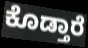
ಕೊಡ್ತಾರೆ